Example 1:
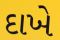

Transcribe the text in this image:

દાખે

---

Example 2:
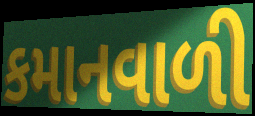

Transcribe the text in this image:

કમાનવાળી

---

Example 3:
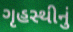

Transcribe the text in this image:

ગૃહસ્થીનું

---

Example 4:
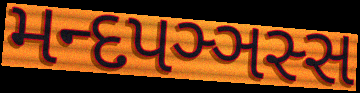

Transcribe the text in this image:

મન્દપઞ્ઞસ્સ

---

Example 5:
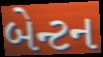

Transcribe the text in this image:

બેન્ટન